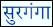
सुरगंगा